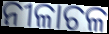
ନୀଳାଚଳ